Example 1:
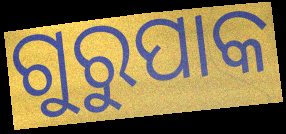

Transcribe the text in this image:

ଗୁରୁପାକ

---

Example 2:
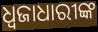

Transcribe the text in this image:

ଧ୍ୱଜାଧାରୀଙ୍କ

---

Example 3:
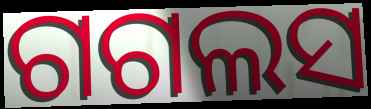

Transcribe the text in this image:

ଗଗଲସ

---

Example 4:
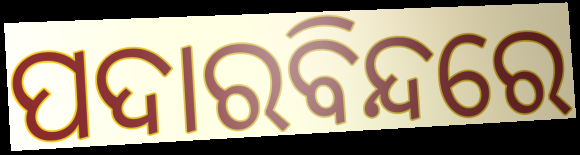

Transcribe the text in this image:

ପଦାରବିନ୍ଦରେ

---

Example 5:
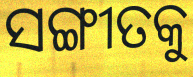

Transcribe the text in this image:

ସଙ୍ଗୀତକୁ